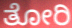
ತೋರಿ